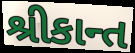
શ્રીકાન્ત